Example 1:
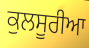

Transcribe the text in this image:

ਕੁਲਸੂਰੀਆ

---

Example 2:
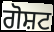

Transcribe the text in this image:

ਗੋਸ਼ਟ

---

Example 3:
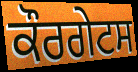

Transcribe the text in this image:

ਕੌਰਗੇਟਸ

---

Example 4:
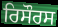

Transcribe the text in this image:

ਰਿਸੌਰਸ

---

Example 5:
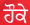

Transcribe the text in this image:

ਹੌਕੇ